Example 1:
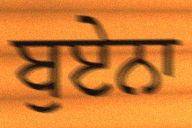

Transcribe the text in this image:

ਬੁਏਨਾ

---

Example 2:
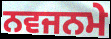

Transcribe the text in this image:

ਨਵਜਨਮੇ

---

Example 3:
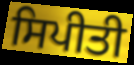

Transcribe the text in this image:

ਸਿਪੀਤੀ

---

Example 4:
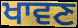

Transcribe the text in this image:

ਖਾਵਣ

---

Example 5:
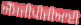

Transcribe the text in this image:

ਐੱਸਜੀਪੀਜੀਆਈ